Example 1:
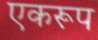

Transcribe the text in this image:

एकरूप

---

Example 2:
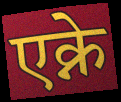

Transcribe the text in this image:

एक्ने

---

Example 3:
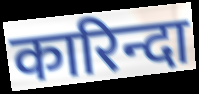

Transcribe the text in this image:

कारिन्दा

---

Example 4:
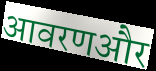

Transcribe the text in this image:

आवरणऔर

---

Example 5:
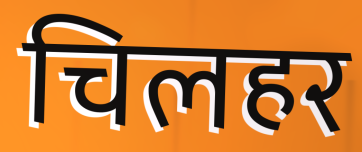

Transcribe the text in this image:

चिलहर